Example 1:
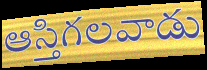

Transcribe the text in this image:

ఆస్తిగలవాడు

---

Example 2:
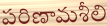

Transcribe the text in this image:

పరిణామశీలి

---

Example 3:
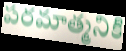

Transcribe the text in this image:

పరమాత్మనికి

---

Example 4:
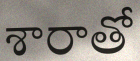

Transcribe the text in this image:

శారాతో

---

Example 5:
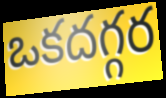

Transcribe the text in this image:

ఒకదగ్గర